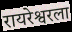
रायरेश्वरला